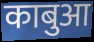
काबुआ